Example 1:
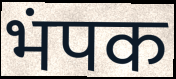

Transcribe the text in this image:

भंपक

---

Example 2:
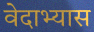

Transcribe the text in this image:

वेदाभ्यास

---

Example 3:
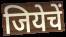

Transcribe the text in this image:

जियेचें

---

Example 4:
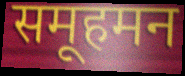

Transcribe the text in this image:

समूहमन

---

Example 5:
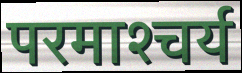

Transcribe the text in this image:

परमाश्चर्य